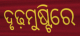
ଦୃଢ଼ମୁଷ୍ଟିରେ